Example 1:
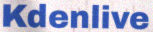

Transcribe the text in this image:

Kdenlive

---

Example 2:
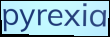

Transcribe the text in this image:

pyrexia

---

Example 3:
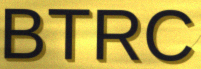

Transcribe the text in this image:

BTRC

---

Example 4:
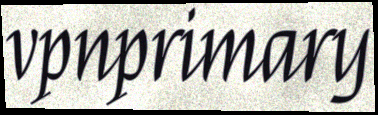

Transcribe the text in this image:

vpnprimary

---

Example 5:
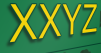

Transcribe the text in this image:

XXYZ